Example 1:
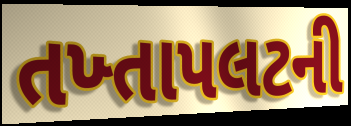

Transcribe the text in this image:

તખ્તાપલટની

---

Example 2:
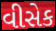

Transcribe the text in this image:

વીસેક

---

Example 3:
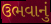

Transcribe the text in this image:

ઉભવાનું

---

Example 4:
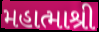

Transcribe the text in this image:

મહાત્માશ્રી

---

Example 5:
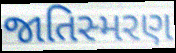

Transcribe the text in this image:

જાતિસ્મરણ